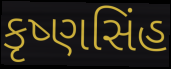
કૃષ્ણસિંહ